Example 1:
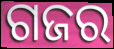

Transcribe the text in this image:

ଗଜର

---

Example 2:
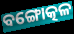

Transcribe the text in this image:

ବଙ୍ଗୋତ୍କଳ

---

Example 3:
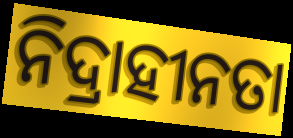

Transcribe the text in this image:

ନିଦ୍ରାହୀନତା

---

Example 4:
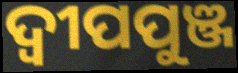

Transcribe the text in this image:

ଦ୍ୱୀପପୁଞ୍ଜ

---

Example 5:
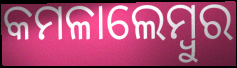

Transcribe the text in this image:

କମଳାଲେମ୍ବୁର